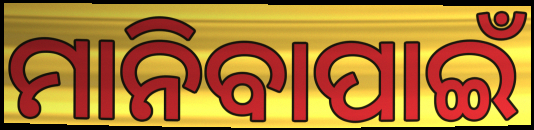
ମାନିବାପାଇଁ